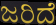
ಜರಿದೆ